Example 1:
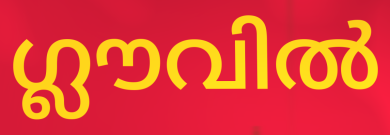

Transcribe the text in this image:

ഗ്ലൗവിൽ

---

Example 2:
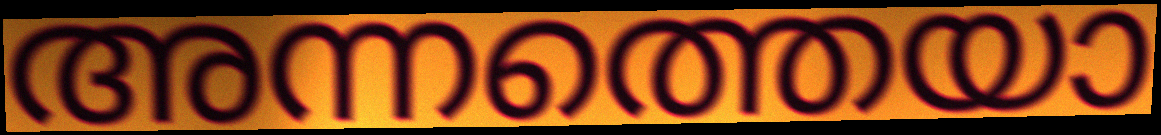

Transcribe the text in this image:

അന്നത്തെയാ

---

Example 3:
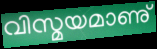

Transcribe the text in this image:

വിസ്മയമാണു്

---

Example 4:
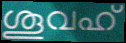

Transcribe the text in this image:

ശൂവഹ്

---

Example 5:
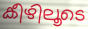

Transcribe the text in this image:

കീഴിലൂടെ